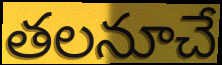
తలనూచే